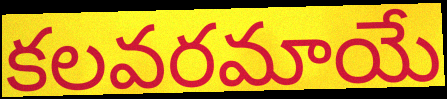
కలవరమాయే